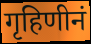
गृहिणीनं